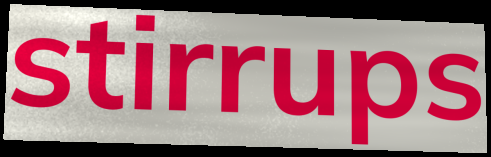
stirrups